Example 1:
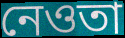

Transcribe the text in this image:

নেওতা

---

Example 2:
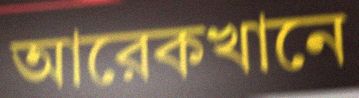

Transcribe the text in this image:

আরেকখানে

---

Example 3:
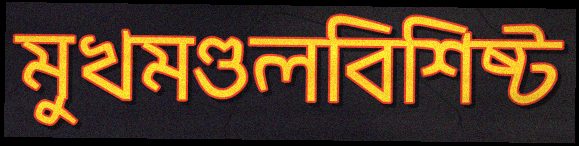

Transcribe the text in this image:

মুখমণ্ডলবিশিষ্ট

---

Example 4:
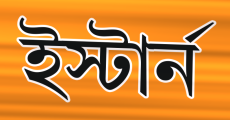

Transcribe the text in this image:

ইস্টার্ন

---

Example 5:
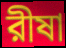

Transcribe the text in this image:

রীষা